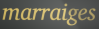
marraiges